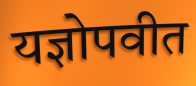
यज्ञोपवीत